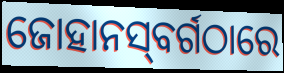
ଜୋହାନସ୍‌ବର୍ଗଠାରେ